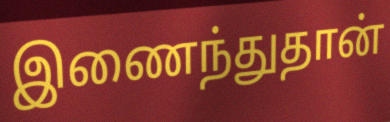
இணைந்துதான்